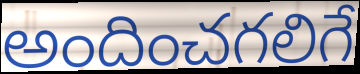
అందించగలిగే